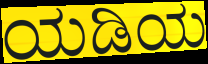
ಯಡಿಯ